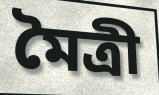
মৈত্রী